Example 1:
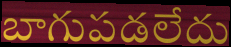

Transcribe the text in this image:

బాగుపడలేదు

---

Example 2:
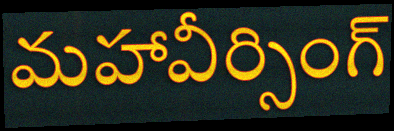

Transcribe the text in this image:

మహావీర్సింగ్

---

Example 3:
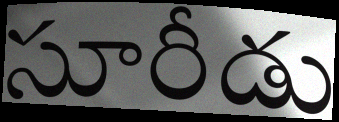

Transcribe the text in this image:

సూరీడు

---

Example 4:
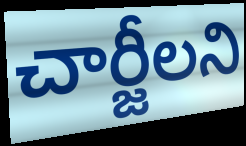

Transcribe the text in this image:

చార్జీలని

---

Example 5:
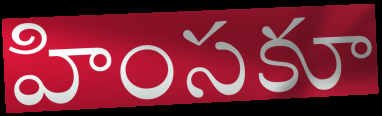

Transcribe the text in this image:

హింసకూ